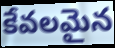
కేవలమైన